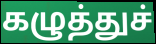
கழுத்துச்